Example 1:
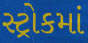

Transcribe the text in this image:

સ્ટ્રોકમાં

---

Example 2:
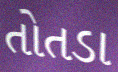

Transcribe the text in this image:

તોતડા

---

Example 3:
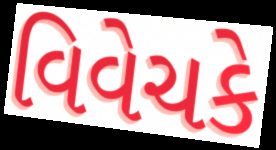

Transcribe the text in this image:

વિવેચકે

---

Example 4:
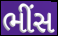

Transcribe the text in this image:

ભીંસ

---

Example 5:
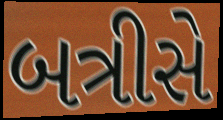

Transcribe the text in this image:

બત્રીસે